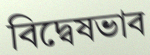
বিদ্বেষভাব